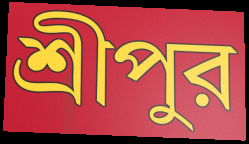
শ্রীপুর